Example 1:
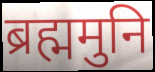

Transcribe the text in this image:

ब्रह्ममुनि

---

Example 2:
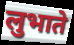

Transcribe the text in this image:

लुभाते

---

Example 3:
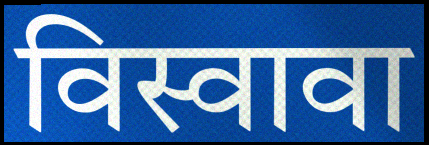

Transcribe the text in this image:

विस्वावा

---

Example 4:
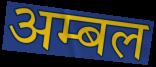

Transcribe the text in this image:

अम्बल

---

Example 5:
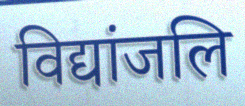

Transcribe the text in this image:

विद्यांजलि